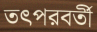
তৎপরবর্তী